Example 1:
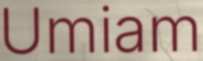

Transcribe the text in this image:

Umiam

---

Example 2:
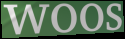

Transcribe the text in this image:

woos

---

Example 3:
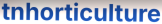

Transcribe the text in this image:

tnhorticulture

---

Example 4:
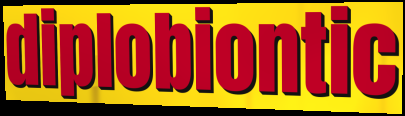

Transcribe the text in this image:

diplobiontic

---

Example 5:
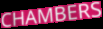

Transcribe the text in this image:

CHAMBERS